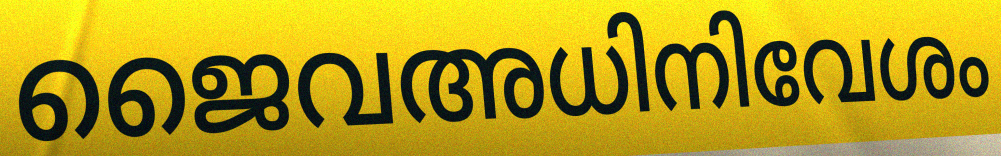
ജൈവഅധിനിവേശം